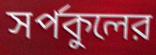
সর্পকুলের